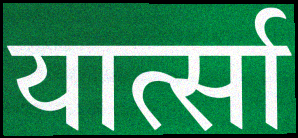
यार्त्सा